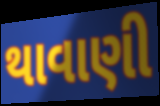
થાવાણી